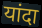
यांदा